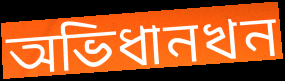
অভিধানখন